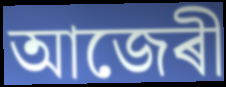
আজেৰী